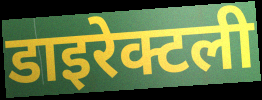
डाइरेक्टली